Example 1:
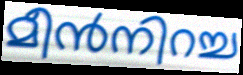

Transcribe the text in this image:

മീൻനിറച്ച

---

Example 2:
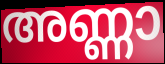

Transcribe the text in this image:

അണ്ണാ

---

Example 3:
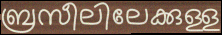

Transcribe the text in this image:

ബ്രസീലിലേക്കുള്ള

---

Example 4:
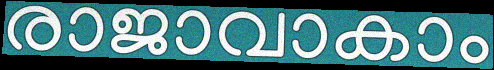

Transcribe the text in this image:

രാജാവാകാം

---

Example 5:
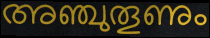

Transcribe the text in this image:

അഞ്ചുതൂണും